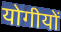
योगीयों